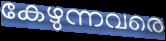
കേഴുന്നവരെ